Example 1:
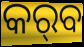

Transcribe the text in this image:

କର୍‌ବ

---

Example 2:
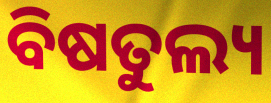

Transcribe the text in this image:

ବିଷତୁଲ୍ୟ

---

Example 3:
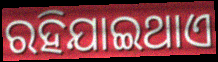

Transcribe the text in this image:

ରହିଯାଇଥାଏ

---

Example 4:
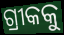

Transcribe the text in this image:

ଗ୍ରୀକକୁ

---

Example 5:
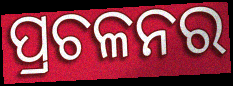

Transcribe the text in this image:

ପ୍ରଚଳନର